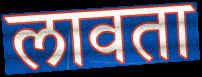
लावता